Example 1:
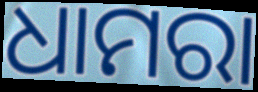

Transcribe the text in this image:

ଧାମରା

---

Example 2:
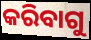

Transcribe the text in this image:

କରିବାଗୁ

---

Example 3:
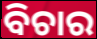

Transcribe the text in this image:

ବିଚାର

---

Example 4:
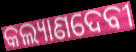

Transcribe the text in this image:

କଲ୍ୟାଣଦେବୀ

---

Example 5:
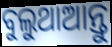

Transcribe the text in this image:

ବୁଲୁଥାଆନ୍ତୁ